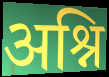
अश्नि